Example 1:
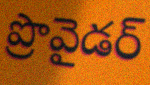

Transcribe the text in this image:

ప్రొవైడర్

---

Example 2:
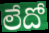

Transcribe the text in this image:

లేదో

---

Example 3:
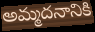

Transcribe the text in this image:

అమ్మదనానికి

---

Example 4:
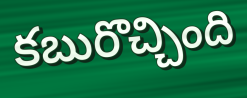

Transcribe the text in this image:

కబురొచ్చింది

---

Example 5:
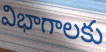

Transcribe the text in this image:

విభాగాలకు